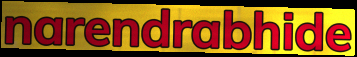
narendrabhide